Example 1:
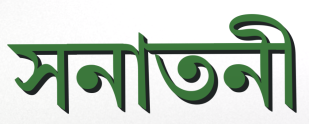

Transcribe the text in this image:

সনাতনী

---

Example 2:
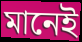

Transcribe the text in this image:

মানেই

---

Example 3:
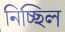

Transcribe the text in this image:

নিচ্ছিল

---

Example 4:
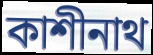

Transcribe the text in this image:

কাশীনাথ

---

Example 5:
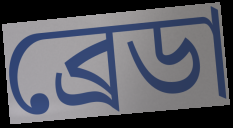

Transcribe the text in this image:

ব্রেডা